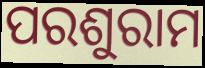
ପରଶୁରାମ